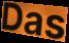
Das